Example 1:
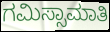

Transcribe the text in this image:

ಗಮಿಸ್ಸಾಮಾತಿ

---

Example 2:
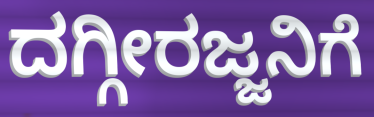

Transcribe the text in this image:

ದಗ್ಗೀರಜ್ಜನಿಗೆ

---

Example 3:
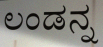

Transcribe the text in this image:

ಲಂಡನ್ನ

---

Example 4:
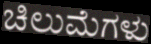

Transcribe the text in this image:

ಚಿಲುಮೆಗಳು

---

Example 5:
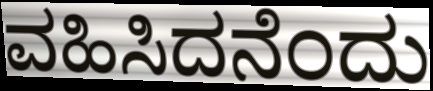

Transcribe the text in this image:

ವಹಿಸಿದನೆಂದು